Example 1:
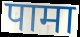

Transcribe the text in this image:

पामा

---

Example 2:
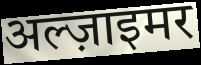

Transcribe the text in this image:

अल्ज़ाइमर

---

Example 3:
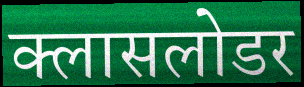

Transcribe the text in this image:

क्लासलोडर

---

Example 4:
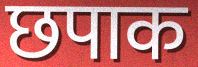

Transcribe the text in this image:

छपाक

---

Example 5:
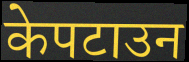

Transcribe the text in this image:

केपटाउन